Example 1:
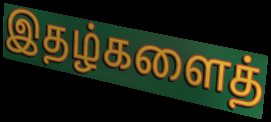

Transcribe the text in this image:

இதழ்களைத்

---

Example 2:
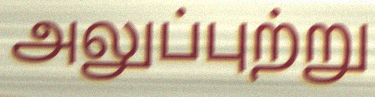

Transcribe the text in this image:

அலுப்புற்று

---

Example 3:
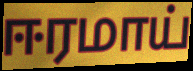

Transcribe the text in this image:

ஈரமாய்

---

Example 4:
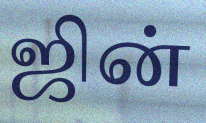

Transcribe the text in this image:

ஜின்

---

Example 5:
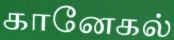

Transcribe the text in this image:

கானேகல்